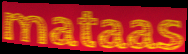
mataas